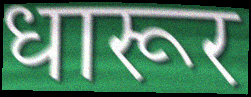
धारूर